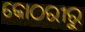
କୋଠରୀରୁ